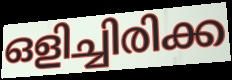
ഒളിച്ചിരിക്ക